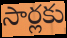
సార్లకు